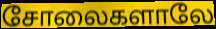
சோலைகளாலே